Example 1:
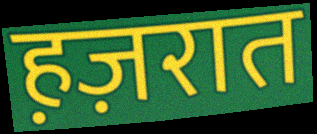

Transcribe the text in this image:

ह़ज़रात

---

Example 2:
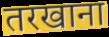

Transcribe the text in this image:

तरखाना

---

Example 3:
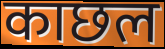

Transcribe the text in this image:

काछल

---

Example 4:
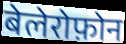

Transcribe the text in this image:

बेलेरोफ़ोन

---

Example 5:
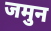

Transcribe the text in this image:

जमुन